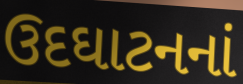
ઉદઘાટનનાં